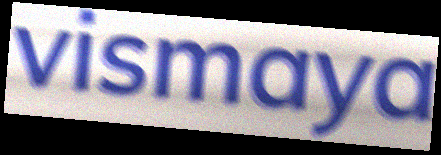
vismaya